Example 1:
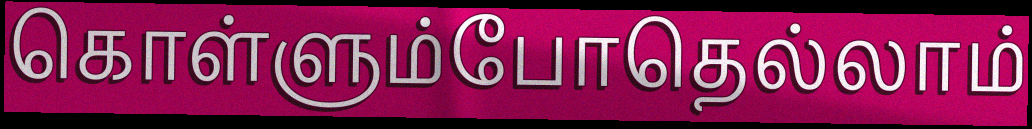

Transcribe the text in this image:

கொள்ளும்போதெல்லாம்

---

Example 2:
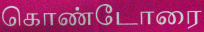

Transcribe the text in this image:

கொண்டோரை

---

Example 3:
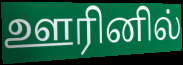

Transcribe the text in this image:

ஊரினில்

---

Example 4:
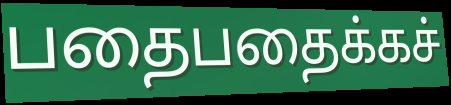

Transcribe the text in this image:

பதைபதைக்கச்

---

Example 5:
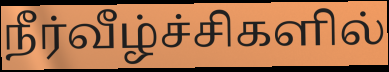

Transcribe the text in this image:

நீர்வீழ்ச்சிகளில்